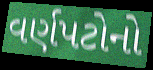
વર્ણપટોનો